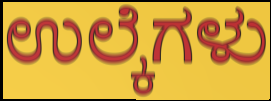
ಉಲ್ಕೆಗಳು